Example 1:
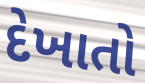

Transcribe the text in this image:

દેખાતો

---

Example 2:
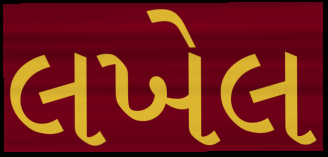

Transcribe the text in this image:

લખેલ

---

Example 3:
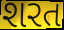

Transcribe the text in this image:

શરત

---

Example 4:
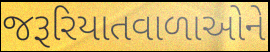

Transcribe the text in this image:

જરૂરિયાતવાળાઓને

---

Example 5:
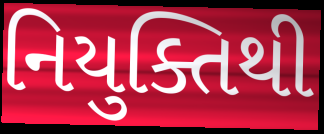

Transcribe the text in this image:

નિયુક્તિથી